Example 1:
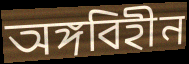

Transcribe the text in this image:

অঙ্গবিহীন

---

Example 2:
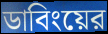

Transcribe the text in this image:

ডাবিংয়ের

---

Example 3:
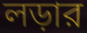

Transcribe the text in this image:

লড়ার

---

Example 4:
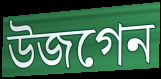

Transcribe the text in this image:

উজগেন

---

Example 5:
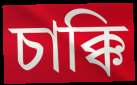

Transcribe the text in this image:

চাক্কি